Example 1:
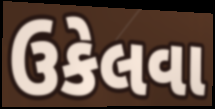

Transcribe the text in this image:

ઉકેલવા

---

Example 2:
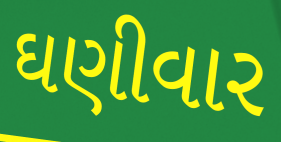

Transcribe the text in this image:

ઘણીવાર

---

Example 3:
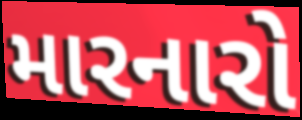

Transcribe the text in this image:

મારનારો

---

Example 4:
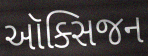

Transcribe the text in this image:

ઑક્સિજન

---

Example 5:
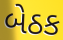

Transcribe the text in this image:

બેઠક